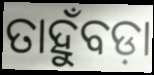
ତାହୁଁବଡ଼ା